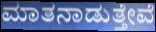
ಮಾತನಾಡುತ್ತೇವೆ